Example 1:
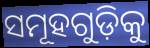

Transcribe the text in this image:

ସମୂହଗୁଡ଼ିକୁ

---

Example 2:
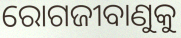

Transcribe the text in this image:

ରୋଗଜୀବାଣୁକୁ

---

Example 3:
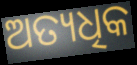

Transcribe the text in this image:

ଅତ୍ୟଧିକ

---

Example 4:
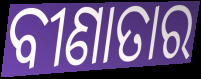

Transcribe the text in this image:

ବୀଣାତାର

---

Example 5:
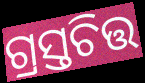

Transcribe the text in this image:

ଗ୍ରସ୍ତଚିତ୍ତ